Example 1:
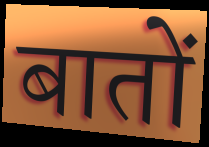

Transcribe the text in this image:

बातों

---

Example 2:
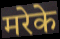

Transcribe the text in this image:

मरेके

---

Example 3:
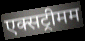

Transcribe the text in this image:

एक्सट्रीमम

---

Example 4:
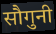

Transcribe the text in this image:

सौगुनी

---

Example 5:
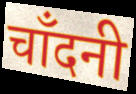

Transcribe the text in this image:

चाँदनी